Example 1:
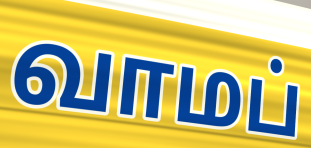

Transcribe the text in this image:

வாமப்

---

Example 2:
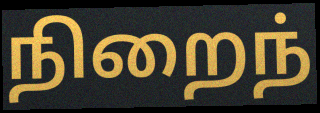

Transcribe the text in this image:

நிறைந்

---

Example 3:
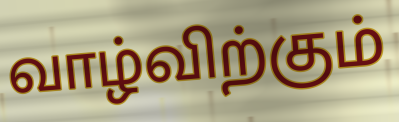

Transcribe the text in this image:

வாழ்விற்கும்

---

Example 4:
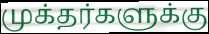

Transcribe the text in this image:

முக்தர்களுக்கு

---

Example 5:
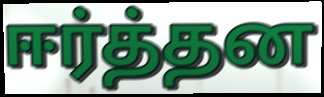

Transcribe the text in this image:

ஈர்த்தன